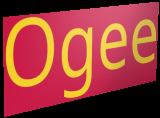
Ogee